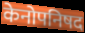
केनोपनिषद